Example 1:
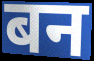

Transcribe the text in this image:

बन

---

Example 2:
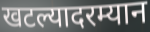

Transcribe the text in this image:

खटल्यादरम्यान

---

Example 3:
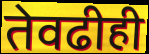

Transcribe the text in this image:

तेवढीही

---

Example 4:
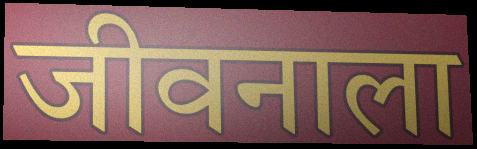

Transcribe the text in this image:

जीवनाला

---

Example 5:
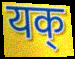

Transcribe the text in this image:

यक्